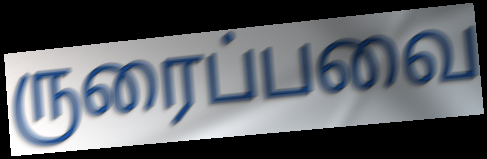
ருரைப்பவை